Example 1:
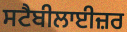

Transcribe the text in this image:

ਸਟੈਬੀਲਾਈਜ਼ਰ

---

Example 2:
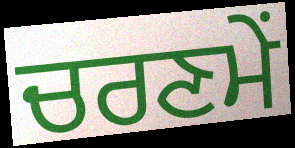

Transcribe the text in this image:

ਚਰਣਮੇਂ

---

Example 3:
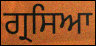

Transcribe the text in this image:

ਗ੍ਰਸਿਆ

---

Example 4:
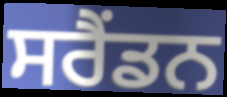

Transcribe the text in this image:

ਸਰੈਂਡਨ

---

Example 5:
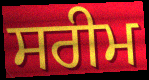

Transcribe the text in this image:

ਸਰੀਮ